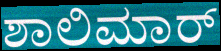
ಶಾಲಿಮಾರ್